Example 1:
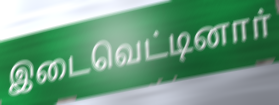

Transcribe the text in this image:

இடைவெட்டினார்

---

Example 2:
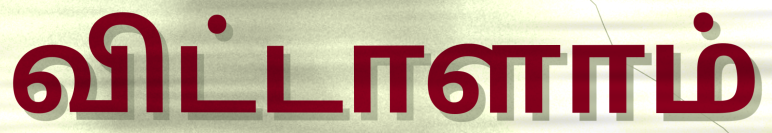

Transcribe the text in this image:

விட்டாளாம்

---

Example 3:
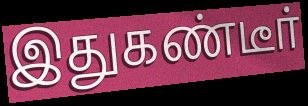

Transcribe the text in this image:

இதுகண்டீர்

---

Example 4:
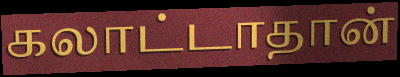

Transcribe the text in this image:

கலாட்டாதான்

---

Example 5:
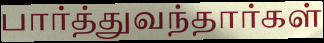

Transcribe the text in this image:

பார்த்துவந்தார்கள்